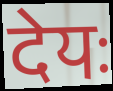
देयः